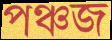
পঞ্চজ